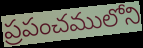
ప్రపంచములోని